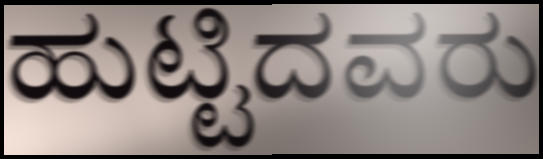
ಹುಟ್ಟಿದವರು